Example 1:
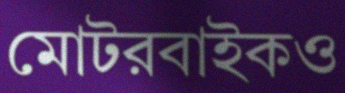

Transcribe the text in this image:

মোটরবাইকও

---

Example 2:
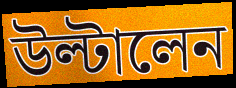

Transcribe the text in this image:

উল্টালেন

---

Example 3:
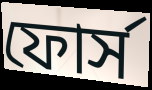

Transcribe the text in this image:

ফোর্স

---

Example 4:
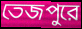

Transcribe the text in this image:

তেজপুরে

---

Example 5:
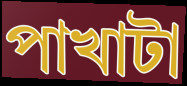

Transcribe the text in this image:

পাখাটা